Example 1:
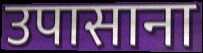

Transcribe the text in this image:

उपासाना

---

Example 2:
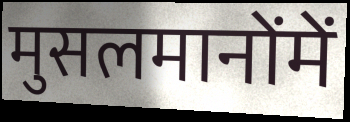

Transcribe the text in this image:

मुसलमानोंमें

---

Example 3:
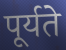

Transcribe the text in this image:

पूर्यते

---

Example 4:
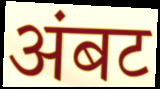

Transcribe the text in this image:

अंबट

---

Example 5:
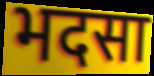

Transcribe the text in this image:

भदसा